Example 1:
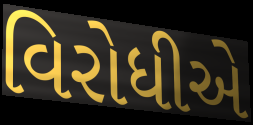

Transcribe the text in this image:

વિરોધીએ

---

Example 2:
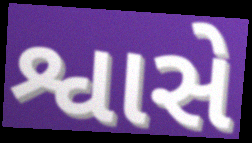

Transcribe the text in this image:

શ્વાસે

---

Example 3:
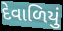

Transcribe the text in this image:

દેવાળિયું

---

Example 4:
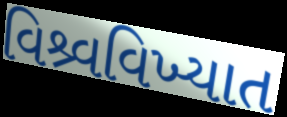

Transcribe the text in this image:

વિશ્ર્વવિખ્યાત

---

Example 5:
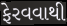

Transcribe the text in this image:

ફેરવવાથી